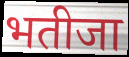
भतीजा